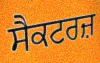
ਸੈਕਟਰਜ਼